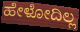
ಹೇಳೋದಿಲ್ಲ